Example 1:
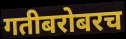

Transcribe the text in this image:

गतीबरोबरच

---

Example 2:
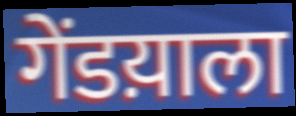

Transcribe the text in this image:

गेंडय़ाला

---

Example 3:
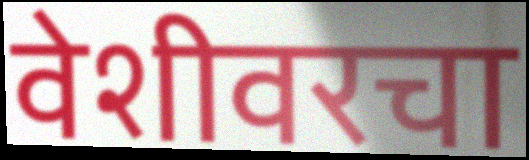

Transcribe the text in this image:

वेशीवरचा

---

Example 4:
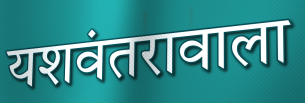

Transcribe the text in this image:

यशवंतरावाला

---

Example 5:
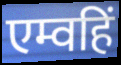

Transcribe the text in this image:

एम्वहिं